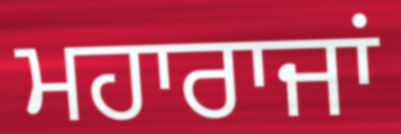
ਮਹਾਰਾਜਾਂ